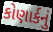
કોણાર્કનું